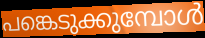
പങ്കെടുക്കുമ്പോൾ